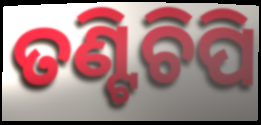
ତଣ୍ଟିଚିପି